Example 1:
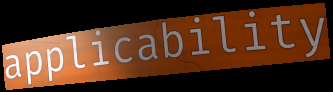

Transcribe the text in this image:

applicability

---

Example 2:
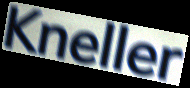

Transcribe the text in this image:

Kneller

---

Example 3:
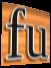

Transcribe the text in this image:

fu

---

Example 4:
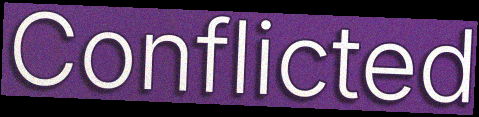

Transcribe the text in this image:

Conflicted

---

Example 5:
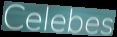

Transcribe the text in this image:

Celebes